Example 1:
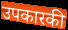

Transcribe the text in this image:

उपकारकी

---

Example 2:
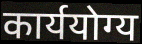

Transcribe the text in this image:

कार्ययोग्य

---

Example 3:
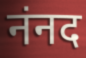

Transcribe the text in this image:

नंनद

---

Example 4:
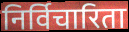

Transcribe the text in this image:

निर्विचारिता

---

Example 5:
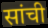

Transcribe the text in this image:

सांची